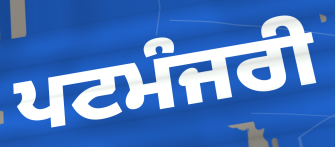
ਪਟਮੰਜਰੀ